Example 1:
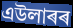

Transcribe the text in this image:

এউলাৰৰ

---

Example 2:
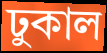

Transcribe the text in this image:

ঢুকাল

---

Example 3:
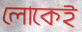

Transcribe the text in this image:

লোকেই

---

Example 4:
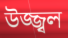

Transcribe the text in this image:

উজ্জ্বল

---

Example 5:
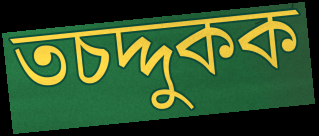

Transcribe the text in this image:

তচদ্দুকক